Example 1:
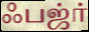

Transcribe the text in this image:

ஃபஜ்ர்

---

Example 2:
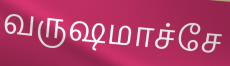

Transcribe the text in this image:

வருஷமாச்சே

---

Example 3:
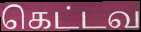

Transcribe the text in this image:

கெட்டவ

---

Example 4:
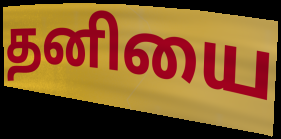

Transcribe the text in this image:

தனியை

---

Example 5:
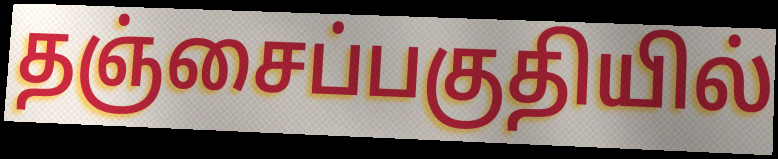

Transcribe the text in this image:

தஞ்சைப்பகுதியில்